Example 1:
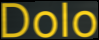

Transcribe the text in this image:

Dolo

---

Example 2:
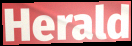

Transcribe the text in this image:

Herald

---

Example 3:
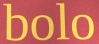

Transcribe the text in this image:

bolo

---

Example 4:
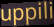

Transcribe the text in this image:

uppili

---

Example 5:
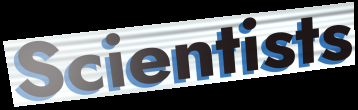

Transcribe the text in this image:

Scientists